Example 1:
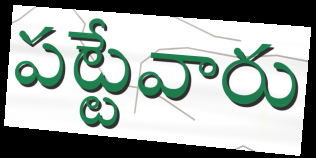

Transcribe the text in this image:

పట్టేవారు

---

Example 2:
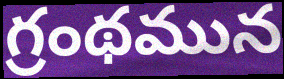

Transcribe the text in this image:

గ్రంథమున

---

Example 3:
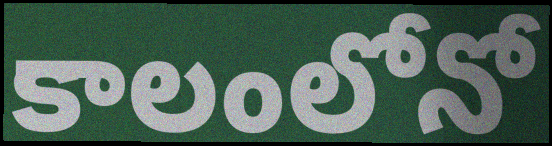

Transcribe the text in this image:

కాలంలోనో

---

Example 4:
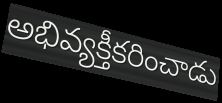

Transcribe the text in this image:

అభివ్యక్తీకరించాడు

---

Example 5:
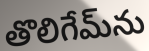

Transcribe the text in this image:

తొలిగేమ్‌ను